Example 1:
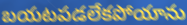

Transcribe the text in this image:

బయటపడలేకపోయాను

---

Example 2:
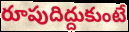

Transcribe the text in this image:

రూపుదిద్దుకుంటే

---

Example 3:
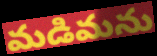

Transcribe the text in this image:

మడిమను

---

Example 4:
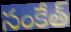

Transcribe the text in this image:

సంకేత్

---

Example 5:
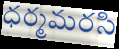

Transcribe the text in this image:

ధర్మమరసి